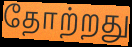
தோற்றது